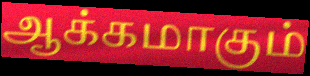
ஆக்கமாகும்